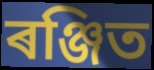
ৰঞ্জিত